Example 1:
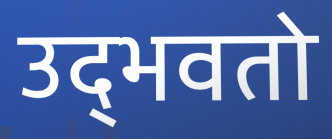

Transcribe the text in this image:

उद्‌भवतो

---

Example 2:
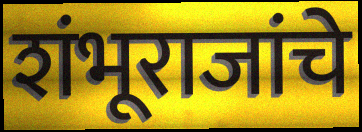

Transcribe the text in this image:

शंभूराजांचे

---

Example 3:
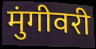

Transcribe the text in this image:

मुंगीवरी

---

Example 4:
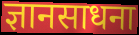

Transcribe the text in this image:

ज्ञानसाधना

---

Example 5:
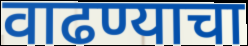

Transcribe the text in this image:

वाढण्याचा